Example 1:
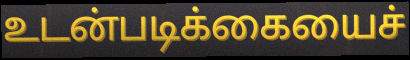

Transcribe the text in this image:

உடன்படிக்கையைச்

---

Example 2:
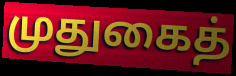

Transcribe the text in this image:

முதுகைத்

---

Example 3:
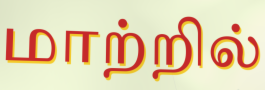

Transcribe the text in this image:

மாற்றில்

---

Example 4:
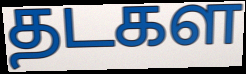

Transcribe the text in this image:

தடகள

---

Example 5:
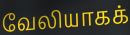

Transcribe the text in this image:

வேலியாகக்